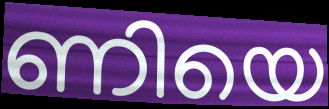
ണിയെ